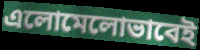
এলোমেলোভাবেই